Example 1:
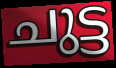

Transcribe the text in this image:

ചുട്ട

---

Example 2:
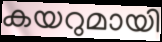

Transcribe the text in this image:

കയറുമായി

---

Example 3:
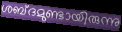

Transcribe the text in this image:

ശബ്ദമുണ്ടായിരുന്നു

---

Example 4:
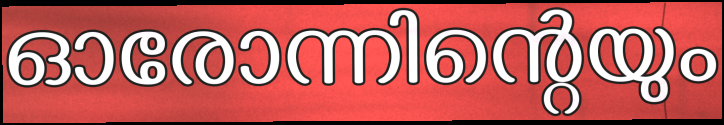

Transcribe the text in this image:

ഓരോന്നിന്റെയും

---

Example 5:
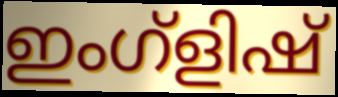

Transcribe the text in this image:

ഇംഗ്ളിഷ്